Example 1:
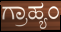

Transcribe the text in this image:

ಗ್ರಾಹ್ಯಂ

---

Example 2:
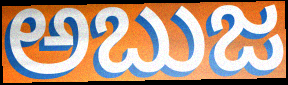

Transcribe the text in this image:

ಅಬುಜ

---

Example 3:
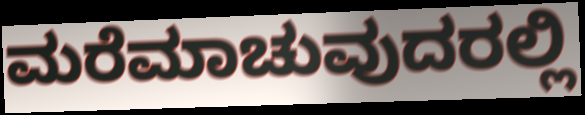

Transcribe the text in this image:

ಮರೆಮಾಚುವುದರಲ್ಲಿ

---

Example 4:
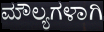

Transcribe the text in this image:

ಮೌಲ್ಯಗಳಾಗಿ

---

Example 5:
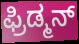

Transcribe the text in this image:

ಫ್ರಿಡ್ಮನ್